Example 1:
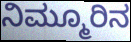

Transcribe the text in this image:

ನಿಮ್ಮೂರಿನ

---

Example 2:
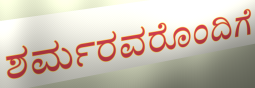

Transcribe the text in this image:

ಶರ್ಮರವರೊಂದಿಗೆ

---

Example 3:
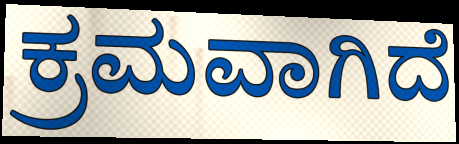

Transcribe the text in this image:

ಕ್ರಮವಾಗಿದೆ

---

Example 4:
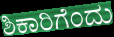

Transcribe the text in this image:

ಶಿಕಾರಿಗೆಂದು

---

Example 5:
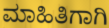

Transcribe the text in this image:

ಮಾಹಿತಿಗಾಗಿ